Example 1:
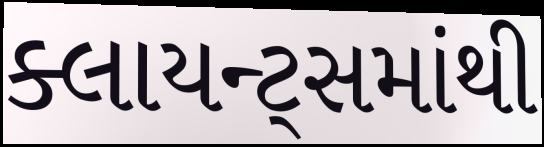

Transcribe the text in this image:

ક્લાયન્ટ્સમાંથી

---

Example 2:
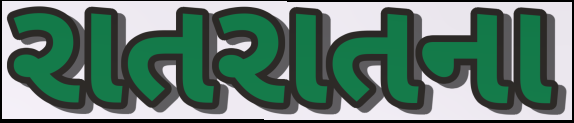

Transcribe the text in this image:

રાતરાતના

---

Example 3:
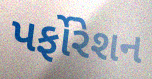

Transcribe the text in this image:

પર્ફોરેશન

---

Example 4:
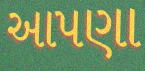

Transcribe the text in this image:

આપણા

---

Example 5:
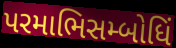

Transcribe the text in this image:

પરમાભિસમ્બોધિં